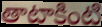
తాటాకింటి